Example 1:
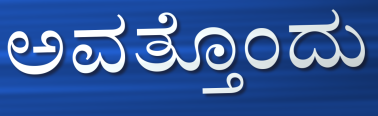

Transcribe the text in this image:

ಅವತ್ತೊಂದು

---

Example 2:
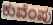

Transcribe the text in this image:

ಕುವೆಂಪು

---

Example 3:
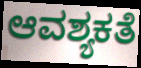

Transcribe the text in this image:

ಆವಶ್ಯಕತೆ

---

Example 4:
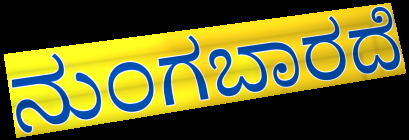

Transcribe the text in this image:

ನುಂಗಬಾರದೆ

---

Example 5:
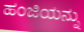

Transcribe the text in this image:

ಹಂಜಿಯನ್ನು